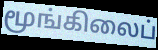
மூங்கிலைப்